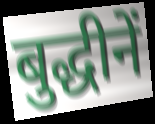
बुद्धीनें